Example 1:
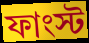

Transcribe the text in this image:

ফাংস্ট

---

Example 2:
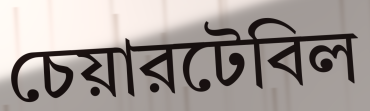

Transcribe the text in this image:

চেয়ারটেবিল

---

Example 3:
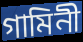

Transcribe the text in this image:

গামিনী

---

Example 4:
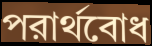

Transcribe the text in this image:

পরার্থবোধ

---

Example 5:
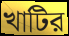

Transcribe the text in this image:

খাটির